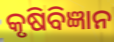
କୃଷିବିଜ୍ଞାନ